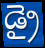
డ్రై